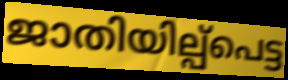
ജാതിയില്പ്പെട്ട